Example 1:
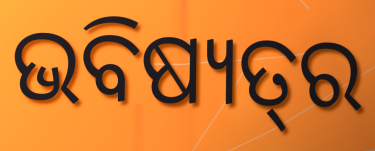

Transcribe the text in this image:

ଭବିଷ୍ୟତ୍‌ର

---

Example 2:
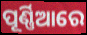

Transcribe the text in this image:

ପୂର୍ଣ୍ଣିଆରେ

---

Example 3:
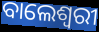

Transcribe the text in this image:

ବାଲେଶ୍ଵରୀ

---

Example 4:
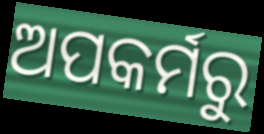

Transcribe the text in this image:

ଅପକର୍ମରୁ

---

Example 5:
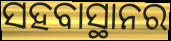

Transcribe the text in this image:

ସହବାସ୍ଥାନର